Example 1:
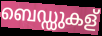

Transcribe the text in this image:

ബെഡ്ഡുകള്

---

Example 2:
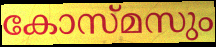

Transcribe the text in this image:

കോസ്മസും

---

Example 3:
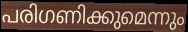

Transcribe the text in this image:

പരിഗണിക്കുമെന്നും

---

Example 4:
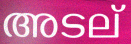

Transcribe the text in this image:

അടല്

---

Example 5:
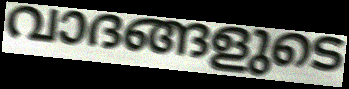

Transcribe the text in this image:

വാദങ്ങളുടെ